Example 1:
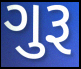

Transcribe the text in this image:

ગુરૂ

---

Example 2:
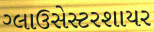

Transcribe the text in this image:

ગ્લાઉસેસ્ટરશાયર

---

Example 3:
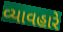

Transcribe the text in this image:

વ્યાવહારે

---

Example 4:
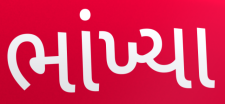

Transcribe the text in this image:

ભાંખ્યા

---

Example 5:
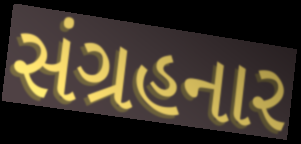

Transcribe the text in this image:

સંગ્રહનાર